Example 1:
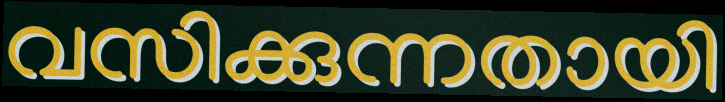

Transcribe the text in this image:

വസിക്കുന്നതായി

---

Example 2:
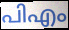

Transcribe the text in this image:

പിഎം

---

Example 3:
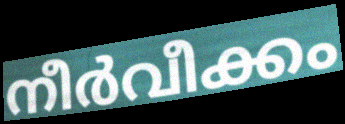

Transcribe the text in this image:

നീർവീക്കം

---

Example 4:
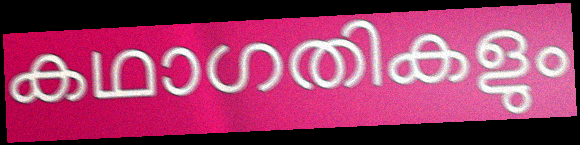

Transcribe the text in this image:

കഥാഗതികളും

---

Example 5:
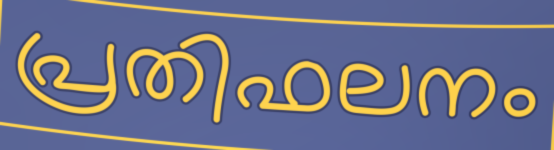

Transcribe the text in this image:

പ്രതിഫലനം